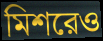
মিশরেও